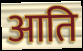
आति